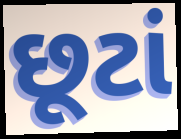
છૂટાં